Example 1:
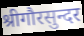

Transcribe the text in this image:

श्रीगौरसुन्दर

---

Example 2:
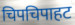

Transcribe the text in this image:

चिपचिपाहट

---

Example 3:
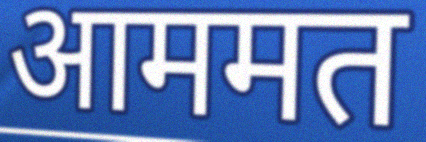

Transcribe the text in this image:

आममत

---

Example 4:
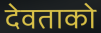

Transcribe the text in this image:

देवताको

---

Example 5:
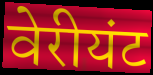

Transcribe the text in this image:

वेरीयंट